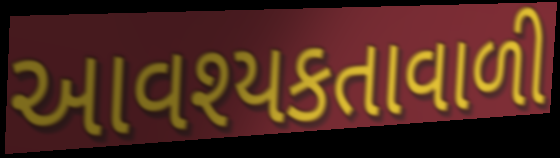
આવશ્યકતાવાળી